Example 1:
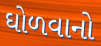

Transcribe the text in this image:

ઘોળવાનો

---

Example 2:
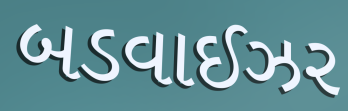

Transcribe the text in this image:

બડવાઈઝર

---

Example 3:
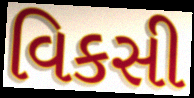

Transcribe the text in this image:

વિકસી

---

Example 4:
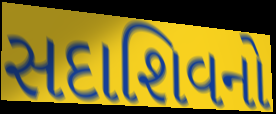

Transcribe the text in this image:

સદાશિવનો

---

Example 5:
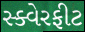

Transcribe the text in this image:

સ્ક્વેરફીટ